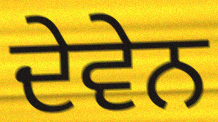
ਦੇਵੇਨ